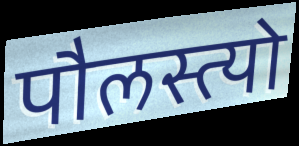
पौलस्त्यो